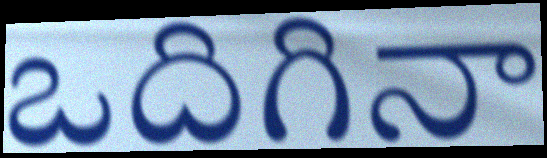
ఒదిగినా